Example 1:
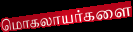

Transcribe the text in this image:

மொகலாயர்களை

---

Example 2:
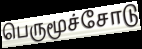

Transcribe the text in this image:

பெருமூச்சோடு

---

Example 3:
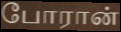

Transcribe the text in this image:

போரான்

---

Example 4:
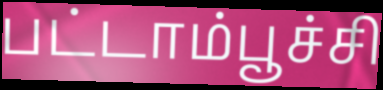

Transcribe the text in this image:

பட்டாம்பூச்சி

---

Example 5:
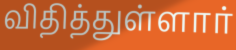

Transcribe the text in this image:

விதித்துள்ளார்